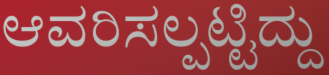
ಆವರಿಸಲ್ಪಟ್ಟಿದ್ದು